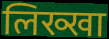
लिख्खा